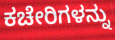
ಕಚೇರಿಗಳನ್ನು